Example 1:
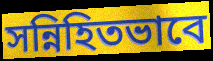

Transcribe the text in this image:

সন্নিহিতভাবে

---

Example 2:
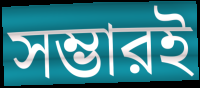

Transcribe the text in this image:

সম্ভারই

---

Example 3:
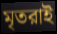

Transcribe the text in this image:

মৃতরাই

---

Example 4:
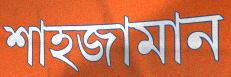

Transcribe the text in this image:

শাহজামান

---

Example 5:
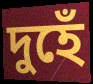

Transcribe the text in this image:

দুহেঁ